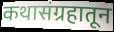
कथासंग्रहातून